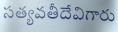
సత్యవతీదేవిగారు